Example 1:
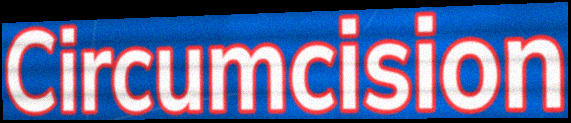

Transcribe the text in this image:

Circumcision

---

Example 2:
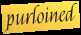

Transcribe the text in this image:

purloined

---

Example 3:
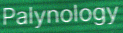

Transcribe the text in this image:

Palynology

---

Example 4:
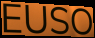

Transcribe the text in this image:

EUSO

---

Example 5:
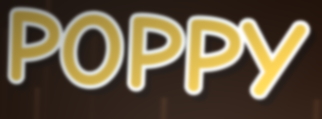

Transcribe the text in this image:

POPPY